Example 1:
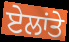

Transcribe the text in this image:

ਏਲਾਂਤੇ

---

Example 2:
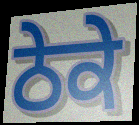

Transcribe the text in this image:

ਠੇਕੇ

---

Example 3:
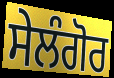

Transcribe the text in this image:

ਸੇਲੰਗੋਰ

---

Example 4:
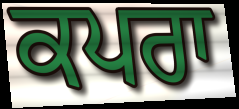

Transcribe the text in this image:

ਕਪਰਾ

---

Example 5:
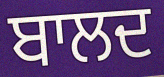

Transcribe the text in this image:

ਬਾਲਦ